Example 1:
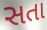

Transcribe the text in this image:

સતા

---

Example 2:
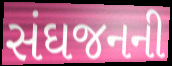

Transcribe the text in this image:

સંઘજનની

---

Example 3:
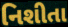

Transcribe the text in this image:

નિશીતા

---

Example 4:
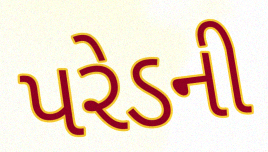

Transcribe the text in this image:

પરેડની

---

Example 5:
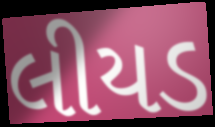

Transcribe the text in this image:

લીયડ